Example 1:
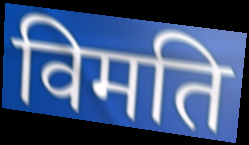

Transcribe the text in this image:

विमति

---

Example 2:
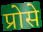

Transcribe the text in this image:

प्रोसे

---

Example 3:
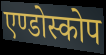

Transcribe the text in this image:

एण्डोस्कोप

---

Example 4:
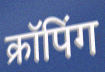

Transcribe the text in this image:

क्रॉपिंग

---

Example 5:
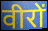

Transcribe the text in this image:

वीरों